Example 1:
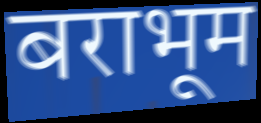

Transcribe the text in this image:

बराभूम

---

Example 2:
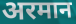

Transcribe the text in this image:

अरमान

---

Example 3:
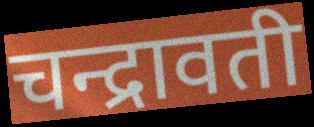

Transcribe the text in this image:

चन्द्रावती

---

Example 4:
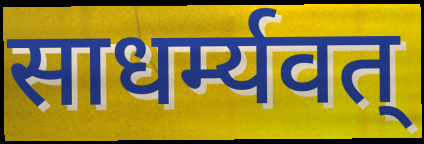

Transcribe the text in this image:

साधर्म्यवत्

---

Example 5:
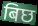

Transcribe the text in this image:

बिछ